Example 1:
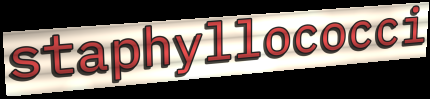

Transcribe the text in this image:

staphyllococci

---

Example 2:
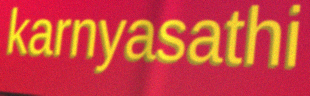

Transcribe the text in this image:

karnyasathi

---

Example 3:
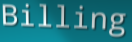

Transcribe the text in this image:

Billing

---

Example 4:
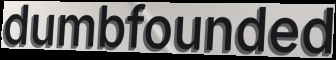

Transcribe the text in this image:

dumbfounded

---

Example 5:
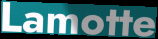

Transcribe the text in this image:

Lamotte